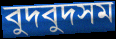
বুদবুদসম